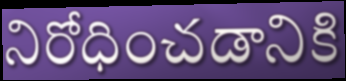
నిరోధించడానికి